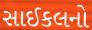
સાઈકલનો